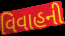
વિવાહની